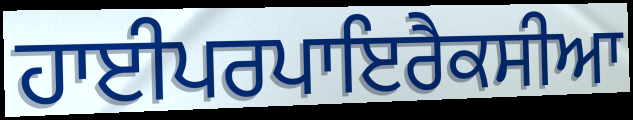
ਹਾਈਪਰਪਾਇਰੈਕਸੀਆ